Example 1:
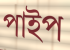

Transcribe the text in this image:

পাইপ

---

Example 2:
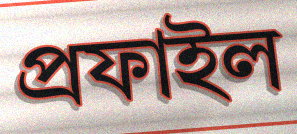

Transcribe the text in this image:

প্ৰফাইল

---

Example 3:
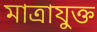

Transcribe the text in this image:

মাত্ৰাযুক্ত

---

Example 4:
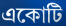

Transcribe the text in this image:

একোটি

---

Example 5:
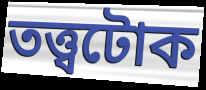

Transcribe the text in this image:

তত্ত্বটোক